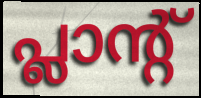
പ്ലാന്റ്